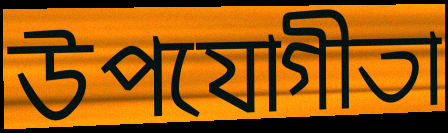
উপযোগীতা